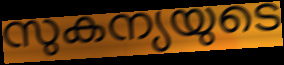
സുകന്യയുടെ